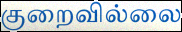
குறைவில்லை